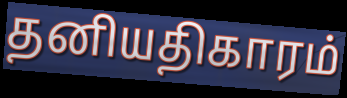
தனியதிகாரம்